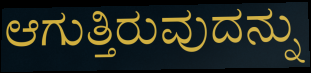
ಆಗುತ್ತಿರುವುದನ್ನು